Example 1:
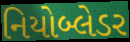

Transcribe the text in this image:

નિયોબ્લેડર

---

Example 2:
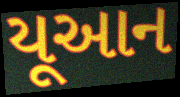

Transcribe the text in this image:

યૂઆન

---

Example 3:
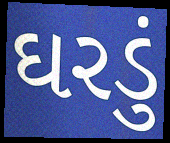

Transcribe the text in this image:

ઘરડું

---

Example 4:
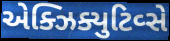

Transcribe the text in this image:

એક્ઝિક્યુટિવ્સે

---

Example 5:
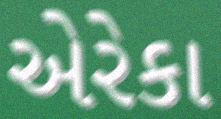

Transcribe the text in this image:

એરેકા